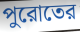
পুরোতের